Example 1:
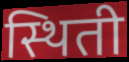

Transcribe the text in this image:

स्थिती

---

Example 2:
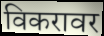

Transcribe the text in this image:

विकरावर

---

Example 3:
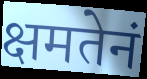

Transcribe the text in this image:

क्षमतेनं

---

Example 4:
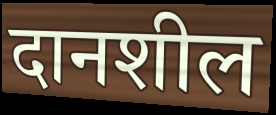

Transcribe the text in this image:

दानशील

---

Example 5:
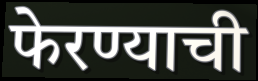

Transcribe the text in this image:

फेरण्याची